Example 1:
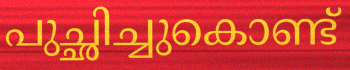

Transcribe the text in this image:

പുച്ഛിച്ചുകൊണ്ട്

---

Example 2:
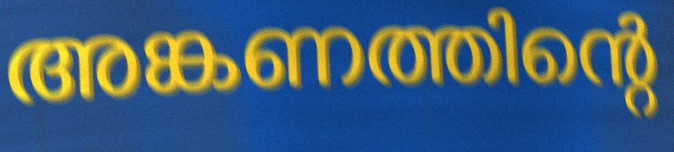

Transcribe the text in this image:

അങ്കണത്തിന്റെ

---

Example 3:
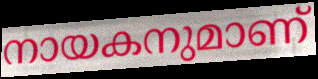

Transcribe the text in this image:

നായകനുമാണ്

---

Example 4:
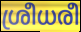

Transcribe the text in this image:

ശ്രീധരീ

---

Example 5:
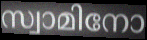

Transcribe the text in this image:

സ്വാമിനോ